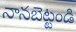
నానబెట్టండి